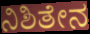
ನಿಶಿತೇನ